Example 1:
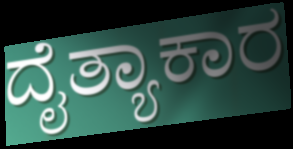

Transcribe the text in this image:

ದೈತ್ಯಾಕಾರ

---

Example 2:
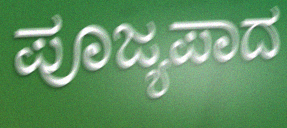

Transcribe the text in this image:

ಪೂಜ್ಯಪಾದ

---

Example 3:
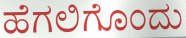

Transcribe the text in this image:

ಹೆಗಲಿಗೊಂದು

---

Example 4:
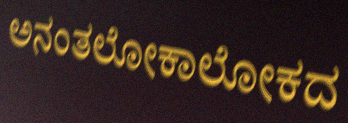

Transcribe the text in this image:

ಅನಂತಲೋಕಾಲೋಕದ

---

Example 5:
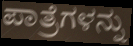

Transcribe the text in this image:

ಪಾತ್ರೆಗಳನ್ನು